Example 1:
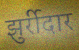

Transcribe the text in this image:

झुर्रीदार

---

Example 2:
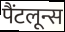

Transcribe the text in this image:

पैंटलून्स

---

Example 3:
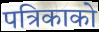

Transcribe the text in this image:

पत्रिकाको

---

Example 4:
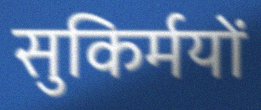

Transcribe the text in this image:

सुकिर्मयों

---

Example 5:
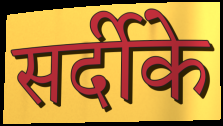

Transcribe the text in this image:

सर्दीके